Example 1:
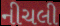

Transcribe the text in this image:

નીચલી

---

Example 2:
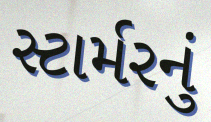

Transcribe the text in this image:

સ્ટાર્મરનું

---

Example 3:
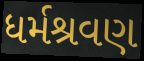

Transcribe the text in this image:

ધર્મશ્રવણ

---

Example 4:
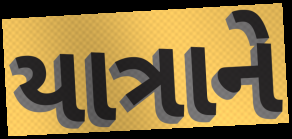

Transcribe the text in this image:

યાત્રાને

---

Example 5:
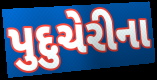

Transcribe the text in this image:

પુદુચેરીના